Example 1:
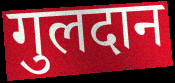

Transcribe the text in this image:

गुलदान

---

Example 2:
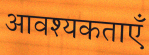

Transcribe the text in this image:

आवश्यकताएँ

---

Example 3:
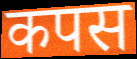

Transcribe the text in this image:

कपस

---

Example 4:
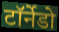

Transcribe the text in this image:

टॉर्नेडो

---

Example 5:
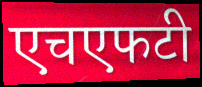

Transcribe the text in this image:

एचएफटी